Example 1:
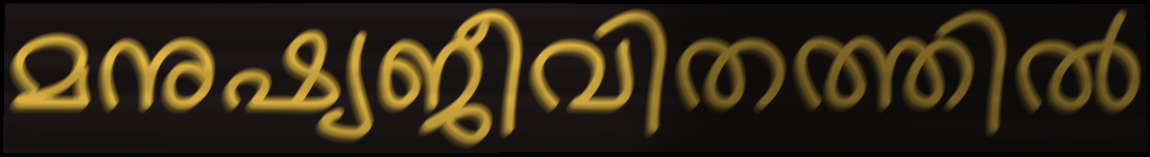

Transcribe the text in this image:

മനുഷ്യജീവിതത്തിൽ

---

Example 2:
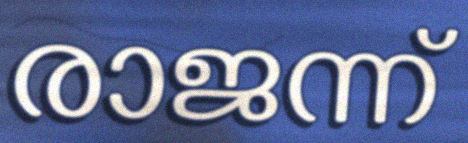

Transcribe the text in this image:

രാജന്ന്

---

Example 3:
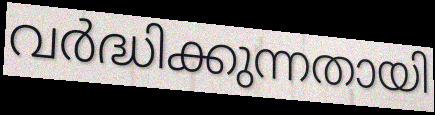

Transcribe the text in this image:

വർദ്ധിക്കുന്നതായി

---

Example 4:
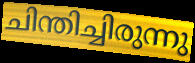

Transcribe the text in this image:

ചിന്തിച്ചിരുന്നു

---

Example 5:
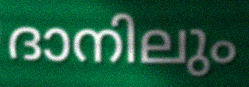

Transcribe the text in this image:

ദാനിലും